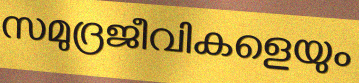
സമുദ്രജീവികളെയും